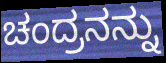
ಚಂದ್ರನನ್ನು